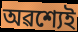
অৱশ্যেই